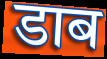
डाब